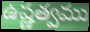
ఉష్ణత్వము